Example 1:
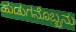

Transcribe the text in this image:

ಹುಡುಗನೊಬ್ಬನು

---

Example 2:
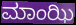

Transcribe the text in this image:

ಮಾಂಝಿ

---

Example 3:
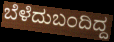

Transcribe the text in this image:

ಬೆಳೆದುಬಂದಿದ್ದ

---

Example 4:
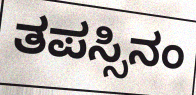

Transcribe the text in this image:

ತಪಸ್ಸಿನಂ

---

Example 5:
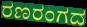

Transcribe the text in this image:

ರಣರಂಗದ